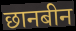
छानबीन